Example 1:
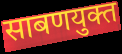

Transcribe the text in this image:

साबणयुक्त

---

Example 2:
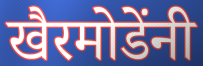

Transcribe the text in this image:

खैरमोडेंनी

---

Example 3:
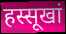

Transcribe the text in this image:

हस्सूखां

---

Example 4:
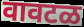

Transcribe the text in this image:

वावटळ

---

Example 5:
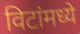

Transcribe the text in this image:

विटांमध्ये